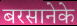
बरसानेके